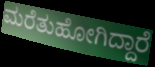
ಮರೆತುಹೋಗಿದ್ದಾರೆ